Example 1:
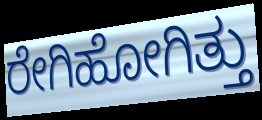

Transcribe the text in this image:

ರೇಗಿಹೋಗಿತ್ತು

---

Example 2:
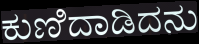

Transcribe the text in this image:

ಕುಣಿದಾಡಿದನು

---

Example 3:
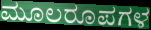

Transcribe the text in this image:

ಮೂಲರೂಪಗಳ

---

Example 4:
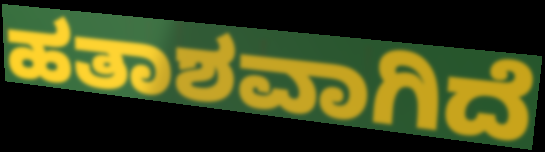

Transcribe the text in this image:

ಹತಾಶವಾಗಿದೆ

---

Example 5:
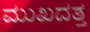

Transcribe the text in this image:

ಮುಖದತ್ತ